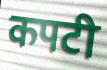
कपटी